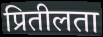
प्रितीलता